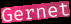
Gernet